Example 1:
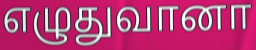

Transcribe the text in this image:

எழுதுவானா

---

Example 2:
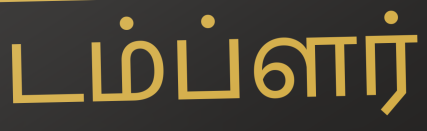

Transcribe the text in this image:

டம்ப்ளர்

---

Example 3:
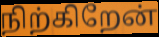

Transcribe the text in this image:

நிற்கிறேன்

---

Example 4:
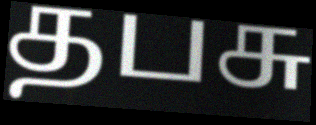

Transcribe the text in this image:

தபசு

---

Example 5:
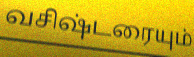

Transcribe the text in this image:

வசிஷ்டரையும்